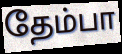
தேம்பா